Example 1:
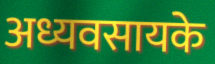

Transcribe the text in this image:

अध्यवसायके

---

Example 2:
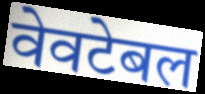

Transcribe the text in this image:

वेवटेबल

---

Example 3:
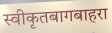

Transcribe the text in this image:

स्वीकृतबागबाहरा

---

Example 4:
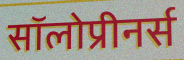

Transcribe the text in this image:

सॉलोप्रीनर्स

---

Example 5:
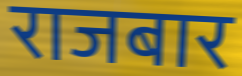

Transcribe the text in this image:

राजबार